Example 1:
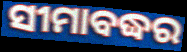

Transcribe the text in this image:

ସୀମାବଦ୍ଧର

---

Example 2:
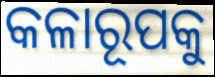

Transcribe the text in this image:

କଳାରୂପକୁ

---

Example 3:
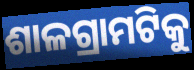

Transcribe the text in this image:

ଶାଳଗ୍ରାମଟିକୁ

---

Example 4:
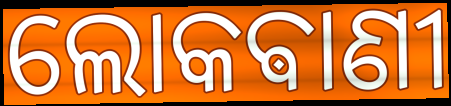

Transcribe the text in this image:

ଲୋକଵାଣୀ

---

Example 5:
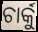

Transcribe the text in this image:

ଚାର୍କୁ